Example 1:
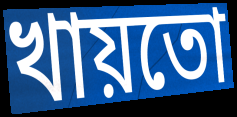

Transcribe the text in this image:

খায়তো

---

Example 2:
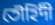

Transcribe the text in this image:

তৌহিদী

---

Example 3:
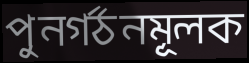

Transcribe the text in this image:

পুনর্গঠনমূলক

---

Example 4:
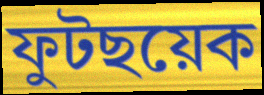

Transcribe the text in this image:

ফুটছয়েক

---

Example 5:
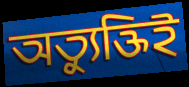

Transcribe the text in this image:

অত্যুক্তিই